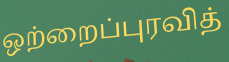
ஒற்றைப்புரவித்